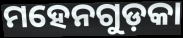
ମହେନଗୁଡ଼କା